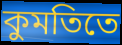
কুমতিতে